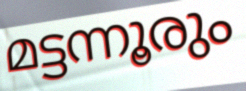
മട്ടന്നൂരും